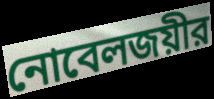
নোবেলজয়ীর